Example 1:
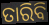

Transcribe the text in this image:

ତାରିବି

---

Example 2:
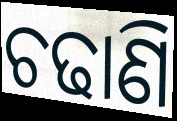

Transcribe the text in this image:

ଚଢାଣି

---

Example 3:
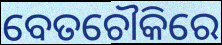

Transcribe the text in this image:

ବେତଚୌକିରେ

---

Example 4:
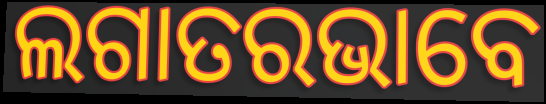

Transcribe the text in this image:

ଲଗାତରଭାବେ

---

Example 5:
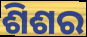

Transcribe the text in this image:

ଶିଶର